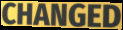
CHANGED